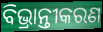
ବିଭ୍ରାନ୍ତୀକରଣ